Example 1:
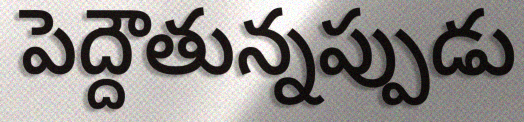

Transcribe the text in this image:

పెద్దౌతున్నప్పుడు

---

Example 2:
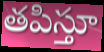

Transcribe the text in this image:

తపిస్తూ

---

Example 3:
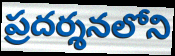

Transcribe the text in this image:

ప్రదర్శనలోని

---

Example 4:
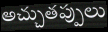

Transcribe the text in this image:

అచ్చుతప్పులు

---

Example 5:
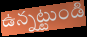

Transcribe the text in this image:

ఉన్నట్టుండి